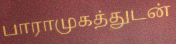
பாராமுகத்துடன்